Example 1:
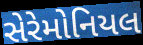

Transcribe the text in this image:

સેરેમોનિયલ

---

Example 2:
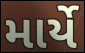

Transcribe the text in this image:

માર્યે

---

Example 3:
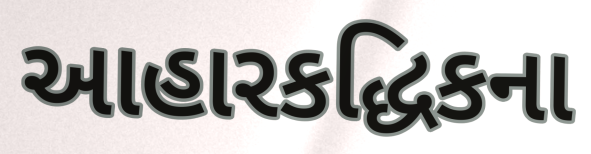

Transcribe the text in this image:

આહારકદ્ધિકના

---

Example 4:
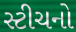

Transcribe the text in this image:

સ્ટીચનો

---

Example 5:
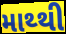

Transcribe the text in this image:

માથ્થી